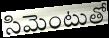
సిమెంటుతో